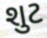
શુટ